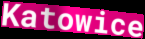
Katowice